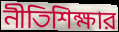
নীতিশিক্ষার